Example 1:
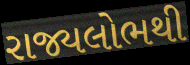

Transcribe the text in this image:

રાજ્યલોભથી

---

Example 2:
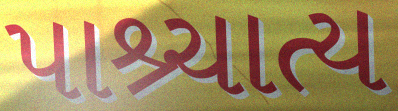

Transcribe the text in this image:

પાશ્ર્ચાત્ય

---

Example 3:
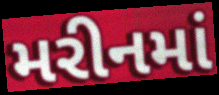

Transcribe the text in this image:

મરીનમાં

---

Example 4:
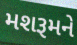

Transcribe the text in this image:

મશરૂમને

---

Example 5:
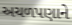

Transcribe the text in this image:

અચળપણાને